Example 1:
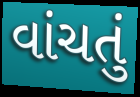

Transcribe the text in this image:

વાંચતું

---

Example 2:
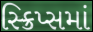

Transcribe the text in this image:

સ્ક્રિપ્સમાં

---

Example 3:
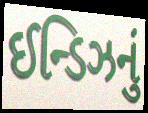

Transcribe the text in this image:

ઈન્ડિઝનું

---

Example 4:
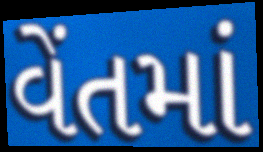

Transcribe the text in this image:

વેંતમાં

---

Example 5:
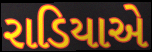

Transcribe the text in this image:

રાડિયાએ